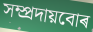
সম্প্ৰদায়বোৰ